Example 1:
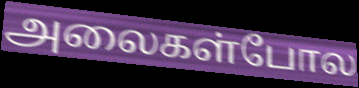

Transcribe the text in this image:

அலைகள்போல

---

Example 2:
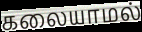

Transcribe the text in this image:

கலையாமல்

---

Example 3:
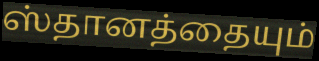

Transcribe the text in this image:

ஸ்தானத்தையும்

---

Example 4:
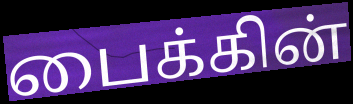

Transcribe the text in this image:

பைக்கின்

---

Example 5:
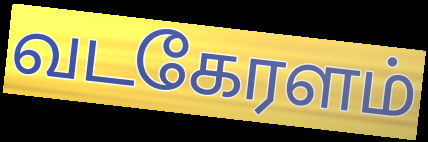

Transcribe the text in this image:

வடகேரளம்